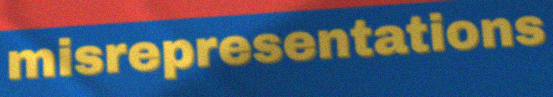
misrepresentations